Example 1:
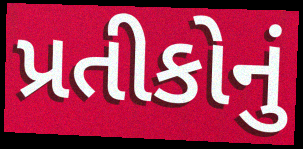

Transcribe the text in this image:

પ્રતીકોનું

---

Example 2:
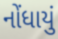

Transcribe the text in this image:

નોંધાયું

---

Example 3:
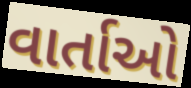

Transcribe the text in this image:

વાર્તાઓ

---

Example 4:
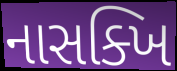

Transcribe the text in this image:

નાસક્ખિ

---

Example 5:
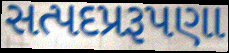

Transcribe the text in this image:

સત્પદપ્રરૂપણા